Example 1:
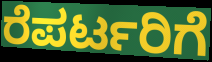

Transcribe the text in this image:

ರೆಪರ್ಟರಿಗೆ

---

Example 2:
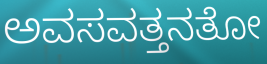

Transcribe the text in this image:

ಅವಸವತ್ತನತೋ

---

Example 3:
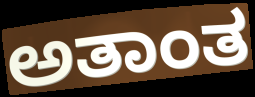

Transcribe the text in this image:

ಅತಾಂತ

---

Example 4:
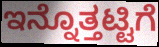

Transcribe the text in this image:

ಇನ್ನೊತ್ತಟ್ಟಿಗೆ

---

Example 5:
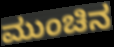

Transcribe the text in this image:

ಮುಂಚಿನ